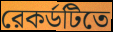
রেকর্ডটিতে